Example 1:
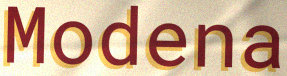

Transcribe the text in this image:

Modena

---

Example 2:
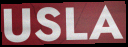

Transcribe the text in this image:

USLA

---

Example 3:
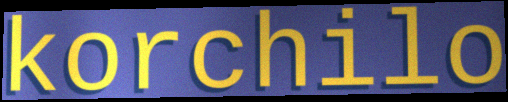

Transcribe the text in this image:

korchilo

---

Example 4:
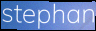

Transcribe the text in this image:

stephan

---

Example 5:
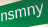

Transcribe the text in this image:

nsmny